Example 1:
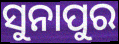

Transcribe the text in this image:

ସୁନାପୁର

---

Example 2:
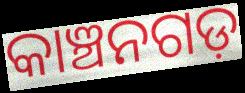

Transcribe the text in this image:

କାଞ୍ଚନଗଡ଼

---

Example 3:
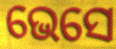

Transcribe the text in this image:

ଭେସେ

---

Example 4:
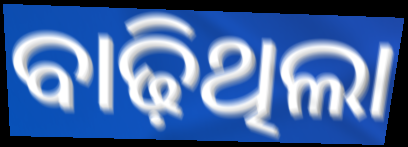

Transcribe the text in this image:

ବାଢ଼ିଥିଲା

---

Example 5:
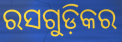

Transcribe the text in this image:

ରସଗୁଡ଼ିକର